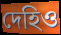
দেহিও